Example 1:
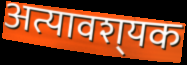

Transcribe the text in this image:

अत्यावश्यक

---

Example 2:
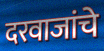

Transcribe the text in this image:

दरवाजांचे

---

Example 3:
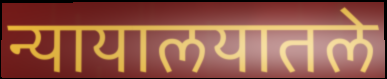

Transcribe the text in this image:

न्यायालयातले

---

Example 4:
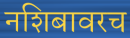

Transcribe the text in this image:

नशिबावरच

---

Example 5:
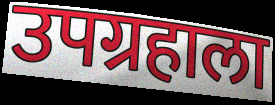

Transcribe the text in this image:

उपग्रहाला